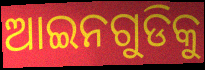
ଆଇନଗୁଡିକୁ